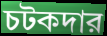
চটকদার